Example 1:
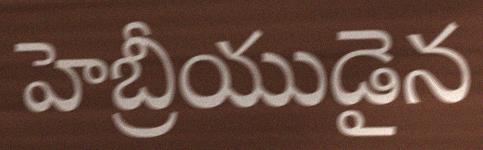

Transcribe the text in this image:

హెబ్రీయుడైన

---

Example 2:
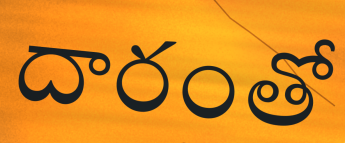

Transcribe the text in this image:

దారంతో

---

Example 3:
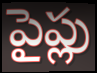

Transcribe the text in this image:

పైప్లు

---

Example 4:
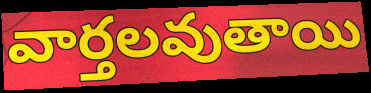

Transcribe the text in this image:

వార్తలవుతాయి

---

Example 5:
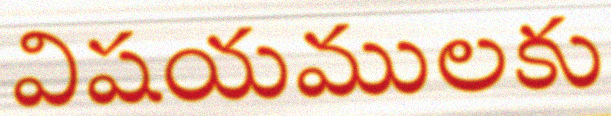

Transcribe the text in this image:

విషయములకు